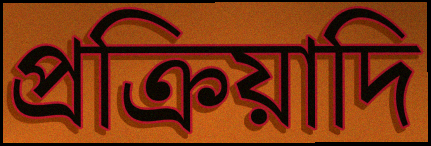
প্রক্রিয়াদি